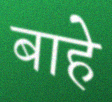
बाहे